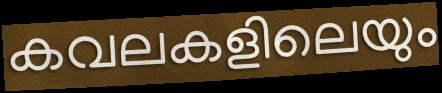
കവലകളിലെയും